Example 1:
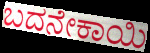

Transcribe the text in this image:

ಬದನೇಕಾಯಿ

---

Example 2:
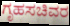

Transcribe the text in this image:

ಗೃಹಸಚಿವರ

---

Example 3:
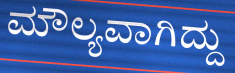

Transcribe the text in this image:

ಮೌಲ್ಯವಾಗಿದ್ದು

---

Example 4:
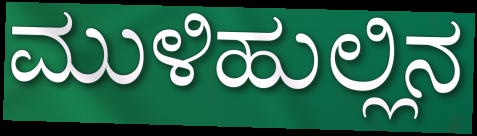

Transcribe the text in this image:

ಮುಳಿಹುಲ್ಲಿನ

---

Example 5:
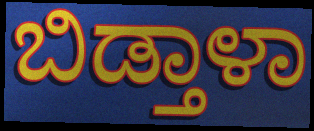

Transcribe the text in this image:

ಬಿಡ್ತಾಳಾ